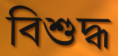
বিশুদ্ধ